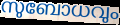
സുബോധവും